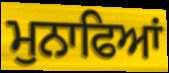
ਮੁਨਾਫਿਆਂ